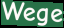
Wege